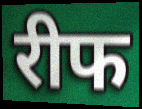
रीफ